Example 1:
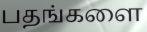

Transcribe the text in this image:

பதங்களை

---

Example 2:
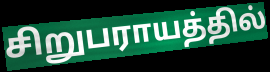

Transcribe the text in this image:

சிறுபராயத்தில்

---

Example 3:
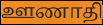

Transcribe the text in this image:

ஊணாதி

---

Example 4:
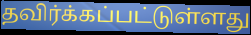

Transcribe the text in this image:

தவிர்க்கப்பட்டுள்ளது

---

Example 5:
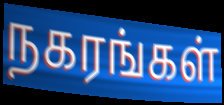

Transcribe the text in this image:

நகரங்கள்